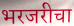
भरजरीचा